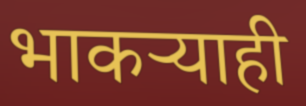
भाकऱ्याही